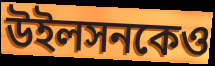
উইলসনকেও